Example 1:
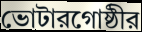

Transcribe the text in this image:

ভোটারগোষ্ঠীর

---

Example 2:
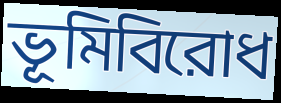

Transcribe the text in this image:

ভূমিবিরোধ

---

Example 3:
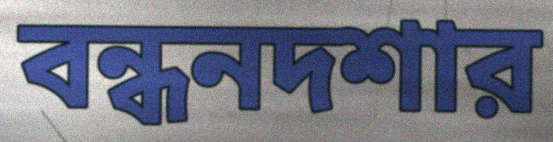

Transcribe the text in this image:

বন্ধনদশার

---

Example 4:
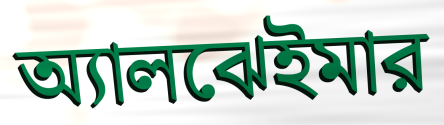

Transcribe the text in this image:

অ্যালঝেইমার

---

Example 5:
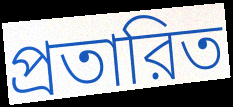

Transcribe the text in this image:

প্রতারিত